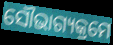
ସୌଭାଗ୍ୟକ୍ରମେ